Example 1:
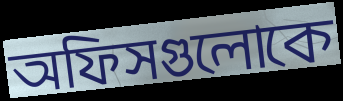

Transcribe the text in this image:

অফিসগুলোকে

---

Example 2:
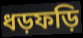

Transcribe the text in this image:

ধড়ফড়ি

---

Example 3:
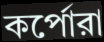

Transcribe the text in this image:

কর্পোরা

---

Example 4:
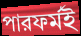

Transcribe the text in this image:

পারফর্মই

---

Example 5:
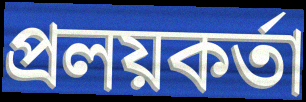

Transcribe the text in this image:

প্রলয়কর্তা